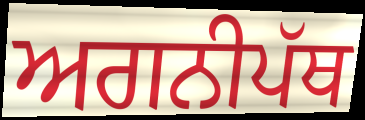
ਅਗਨੀਪੱਥ